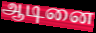
ஆடினை